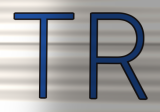
TR